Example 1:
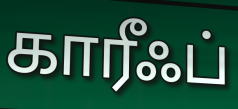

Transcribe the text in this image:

காரீஃப்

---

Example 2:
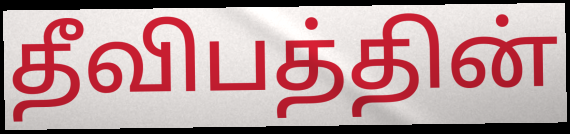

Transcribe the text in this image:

தீவிபத்தின்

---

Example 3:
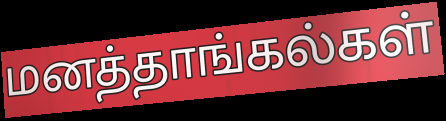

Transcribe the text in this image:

மனத்தாங்கல்கள்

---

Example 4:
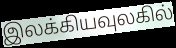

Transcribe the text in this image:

இலக்கியவுலகில்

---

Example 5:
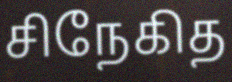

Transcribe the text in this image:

சிநேகித